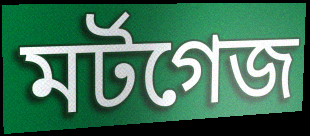
মর্টগেজ